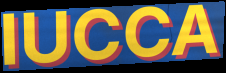
IUCCA